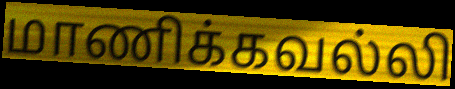
மாணிக்கவல்லி